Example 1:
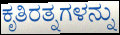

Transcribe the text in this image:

ಕೃತಿರತ್ನಗಳನ್ನು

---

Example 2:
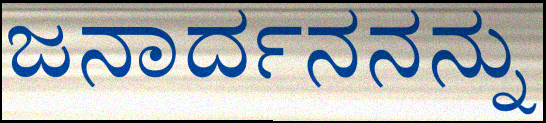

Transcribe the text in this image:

ಜನಾರ್ದನನನ್ನು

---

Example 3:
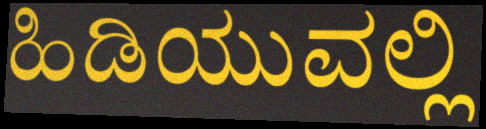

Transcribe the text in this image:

ಹಿಡಿಯುವಲ್ಲಿ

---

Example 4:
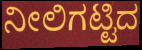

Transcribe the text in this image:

ನೀಲಿಗಟ್ಟಿದ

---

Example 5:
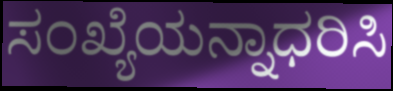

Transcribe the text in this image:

ಸಂಖ್ಯೆಯನ್ನಾಧರಿಸಿ